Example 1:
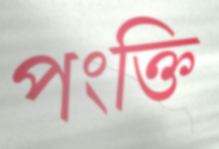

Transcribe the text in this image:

পংক্তি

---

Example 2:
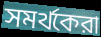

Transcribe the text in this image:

সমর্থকেরা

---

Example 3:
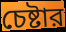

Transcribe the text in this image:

চেষ্টার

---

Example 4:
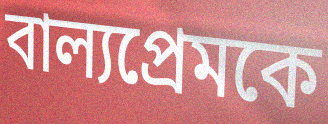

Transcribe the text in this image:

বাল্যপ্রেমকে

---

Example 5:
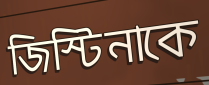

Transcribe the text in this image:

জিস্টিনাকে